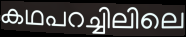
കഥപറച്ചിലിലെ